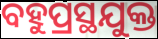
ବହୁପ୍ରସ୍ଥଯୁକ୍ତ